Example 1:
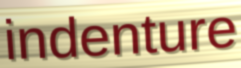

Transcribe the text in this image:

indenture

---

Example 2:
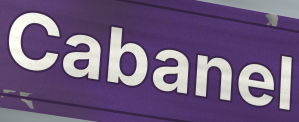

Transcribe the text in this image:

Cabanel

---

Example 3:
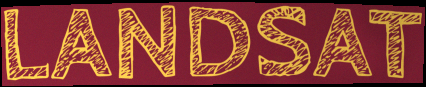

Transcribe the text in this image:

LANDSAT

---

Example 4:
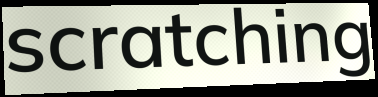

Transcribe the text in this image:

scratching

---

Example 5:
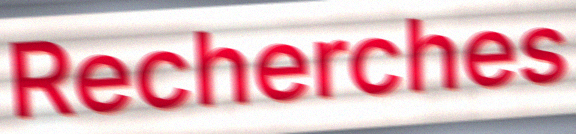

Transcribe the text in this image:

Recherches